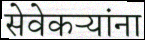
सेवेकऱ्यांना